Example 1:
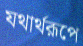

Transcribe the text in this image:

যথার্থরূপে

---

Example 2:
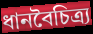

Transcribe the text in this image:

ধানবৈচিত্র্য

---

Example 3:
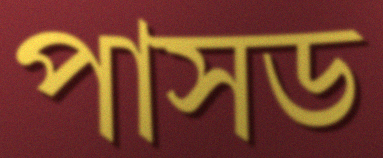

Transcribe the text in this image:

পাসড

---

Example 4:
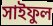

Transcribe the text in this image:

সাইফুল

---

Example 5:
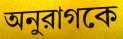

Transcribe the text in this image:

অনুরাগকে